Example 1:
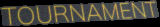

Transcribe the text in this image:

TOURNAMENT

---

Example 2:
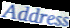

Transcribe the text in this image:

Address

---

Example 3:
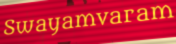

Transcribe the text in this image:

Swayamvaram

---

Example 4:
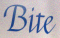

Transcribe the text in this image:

Bite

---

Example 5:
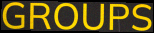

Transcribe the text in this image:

GROUPS